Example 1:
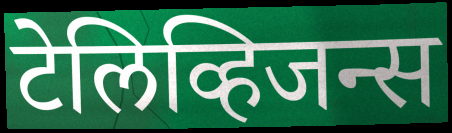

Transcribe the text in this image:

टेलिव्हिजन्स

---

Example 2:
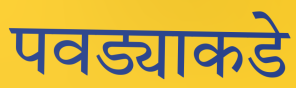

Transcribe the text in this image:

पवड्याकडे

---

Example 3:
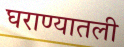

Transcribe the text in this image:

घराण्यातली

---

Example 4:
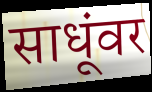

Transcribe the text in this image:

साधूंवर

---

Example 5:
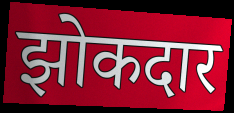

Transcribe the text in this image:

झोकदार